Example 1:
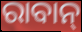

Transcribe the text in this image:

ରାବାନ୍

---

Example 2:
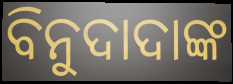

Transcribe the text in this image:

ବିନୁଦାଦାଙ୍କ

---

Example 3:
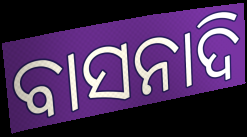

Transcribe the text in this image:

ବାସନାଦି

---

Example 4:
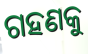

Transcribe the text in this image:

ଗହଣକୁ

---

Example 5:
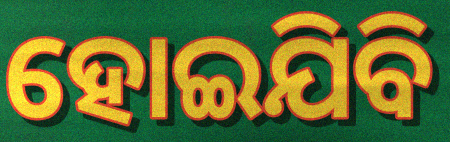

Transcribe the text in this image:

ହୋଇଯିବି